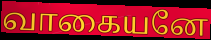
வாகையனே